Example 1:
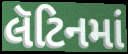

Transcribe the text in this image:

લૅટિનમાં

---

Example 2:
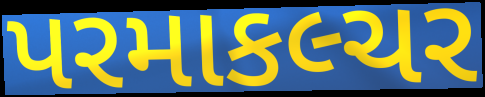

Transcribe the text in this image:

પરમાકલ્ચર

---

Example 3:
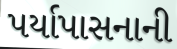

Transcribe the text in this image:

પર્યાપાસનાની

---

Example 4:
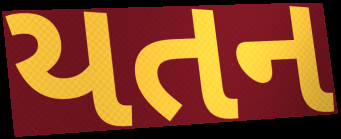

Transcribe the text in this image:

યતન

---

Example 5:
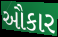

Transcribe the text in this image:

ઔકાર